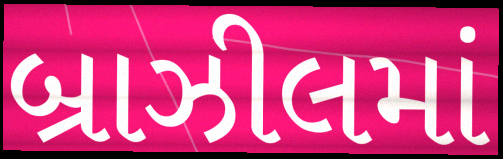
બ્રાઝીલમાં